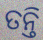
ତନ୍ତି